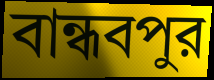
বান্ধবপুর